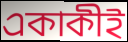
একাকীই